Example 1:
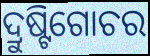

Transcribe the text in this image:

ଦ୍ରୁଷ୍ଟିଗୋଚର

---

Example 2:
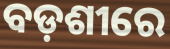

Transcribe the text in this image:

ବଡ଼ଶୀରେ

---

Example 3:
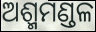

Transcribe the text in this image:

ଅଶ୍ମମଣ୍ଡଳ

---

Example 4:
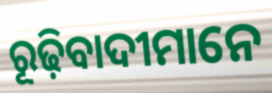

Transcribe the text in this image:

ରୂଢ଼ିବାଦୀମାନେ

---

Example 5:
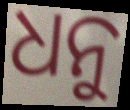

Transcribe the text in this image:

ଧନୁ